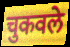
चुकवले